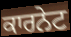
ਕਾਰਨੇਟ